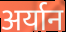
अर्यान